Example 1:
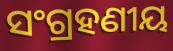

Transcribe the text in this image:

ସଂଗ୍ରହଣୀୟ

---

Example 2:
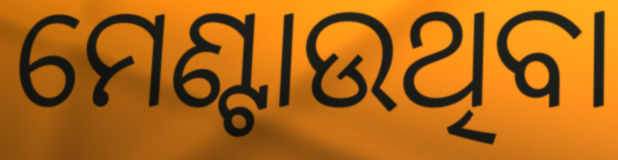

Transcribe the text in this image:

ମେଣ୍ଟାଉଥିବା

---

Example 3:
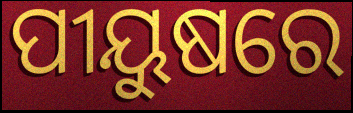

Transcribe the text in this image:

ପୀୟୁଷରେ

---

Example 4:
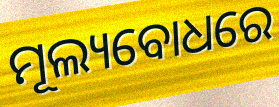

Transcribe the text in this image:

ମୂଲ୍ୟବୋଧରେ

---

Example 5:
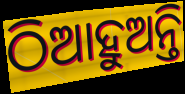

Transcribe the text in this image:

ଠିଆହୁଅନ୍ତି